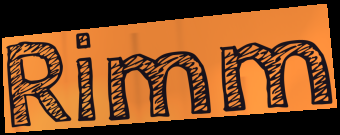
Rimm